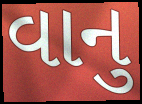
વાનુ